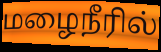
மழைநீரில்